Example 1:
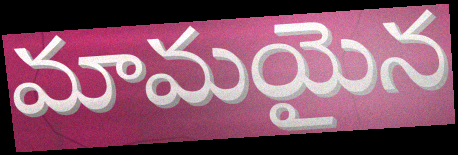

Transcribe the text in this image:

మామయైన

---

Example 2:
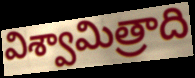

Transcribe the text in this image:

విశ్వామిత్రాది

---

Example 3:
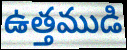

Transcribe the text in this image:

ఉత్తముడి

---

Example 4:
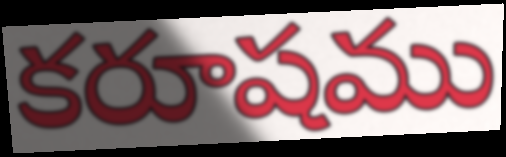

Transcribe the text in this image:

కరూషము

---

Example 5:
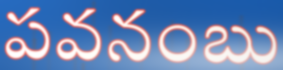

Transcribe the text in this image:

పవనంబు